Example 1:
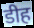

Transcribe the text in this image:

डीह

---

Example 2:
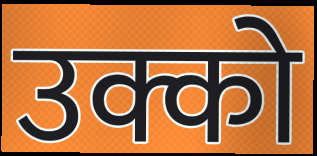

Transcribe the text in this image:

उक्को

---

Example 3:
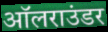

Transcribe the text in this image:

ऑलराउंडर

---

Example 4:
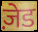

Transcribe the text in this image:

ज़ेड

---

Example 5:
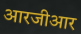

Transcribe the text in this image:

आरजीआर